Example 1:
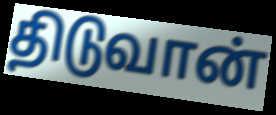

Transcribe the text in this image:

திடுவான்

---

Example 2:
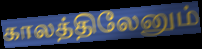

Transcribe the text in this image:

காலத்திலேனும்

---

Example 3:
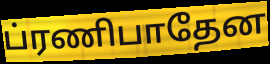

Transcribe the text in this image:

ப்ரணிபாதேன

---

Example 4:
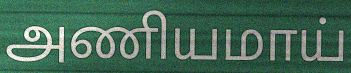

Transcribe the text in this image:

அணியமாய்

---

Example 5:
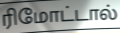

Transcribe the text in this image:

ரிமோட்டால்